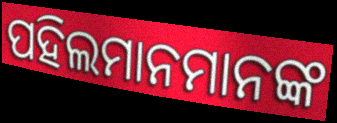
ପହିଲମାନମାନଙ୍କ